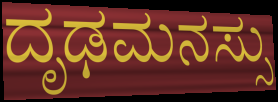
ದೃಢಮನಸ್ಸು